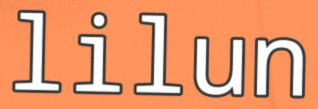
lilun